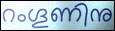
റംഗൂണിനു